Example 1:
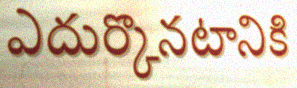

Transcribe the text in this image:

ఎదుర్కొనటానికి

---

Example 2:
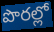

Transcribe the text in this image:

పొరల్లో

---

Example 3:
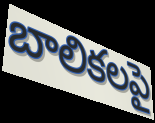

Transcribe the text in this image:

బాలికలపై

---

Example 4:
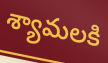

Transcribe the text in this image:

శ్యామలకి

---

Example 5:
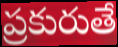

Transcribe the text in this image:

ప్రకురుతే